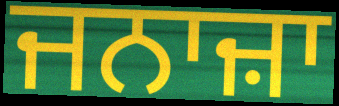
ਜਨਾਜ਼ਾ